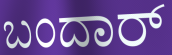
ಬಂದಾರ್